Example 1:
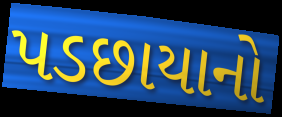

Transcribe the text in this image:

પડછાયાનો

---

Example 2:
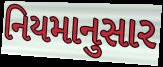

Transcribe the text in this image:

નિયમાનુસાર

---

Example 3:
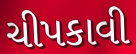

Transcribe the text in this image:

ચીપકાવી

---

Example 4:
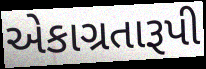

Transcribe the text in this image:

એકાગ્રતારૂપી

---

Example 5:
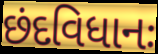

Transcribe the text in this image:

છંદવિધાનઃ